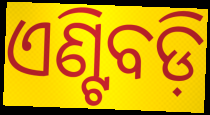
ଏଣ୍ଟିବଡ଼ି